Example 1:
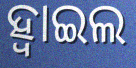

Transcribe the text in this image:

ହ୍ବାଇଲ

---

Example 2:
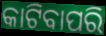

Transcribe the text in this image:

କାଟିବାପରି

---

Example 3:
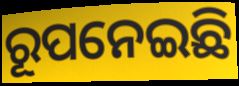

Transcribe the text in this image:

ରୂପନେଇଛି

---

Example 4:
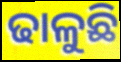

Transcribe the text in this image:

ଢାଳୁଛି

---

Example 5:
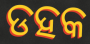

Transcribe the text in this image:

ଡହକ